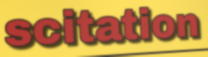
scitation